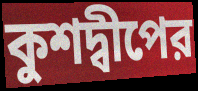
কুশদ্বীপের